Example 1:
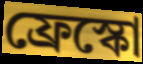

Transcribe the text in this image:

ফ্রেস্কো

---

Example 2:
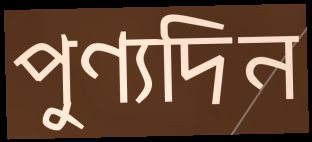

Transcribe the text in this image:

পুণ্যদিন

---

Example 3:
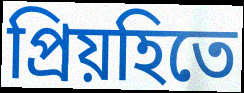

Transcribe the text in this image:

প্রিয়হিতে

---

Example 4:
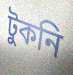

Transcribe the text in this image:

টুকনি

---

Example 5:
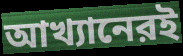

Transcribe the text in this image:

আখ্যানেরই